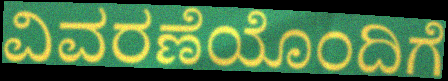
ವಿವರಣೆಯೊಂದಿಗೆ